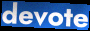
devote